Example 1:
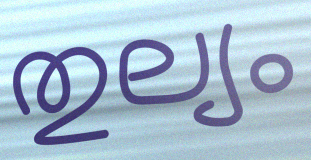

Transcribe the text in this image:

തുല്യം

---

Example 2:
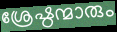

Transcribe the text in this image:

ശ്രേഷ്ഠന്മാരും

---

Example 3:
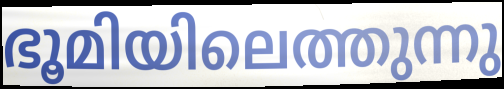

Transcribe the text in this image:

ഭൂമിയിലെത്തുന്നു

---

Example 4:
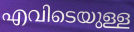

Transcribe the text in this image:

എവിടെയുള്ള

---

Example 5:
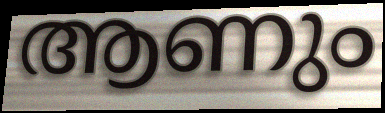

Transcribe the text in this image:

ആണും